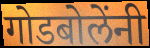
गोडबोलेंनी